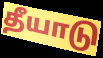
தீயாடு